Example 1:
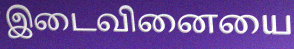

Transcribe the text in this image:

இடைவினையை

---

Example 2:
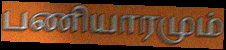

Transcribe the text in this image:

பணியாரமும்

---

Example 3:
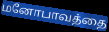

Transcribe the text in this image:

மனோபாவத்தை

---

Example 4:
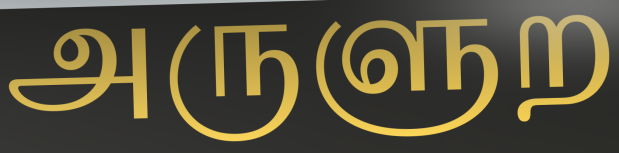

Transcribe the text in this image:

அருளுற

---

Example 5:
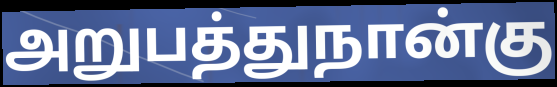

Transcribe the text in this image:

அறுபத்துநான்கு